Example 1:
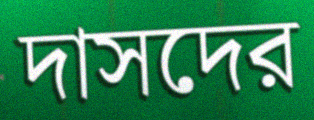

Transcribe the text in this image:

দাসদের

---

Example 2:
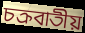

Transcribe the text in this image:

চক্রবাতীয়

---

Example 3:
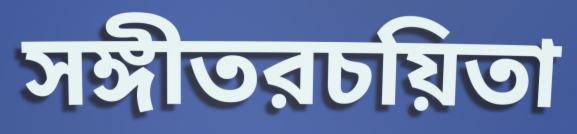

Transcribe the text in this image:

সঙ্গীতরচয়িতা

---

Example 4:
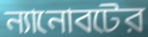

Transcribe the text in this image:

ন্যানোবটের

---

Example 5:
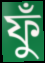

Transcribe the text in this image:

ফুঁ